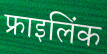
फ्राइलिंक